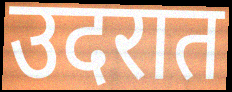
उदरात